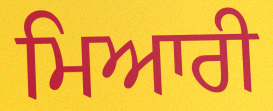
ਮਿਆਰੀ